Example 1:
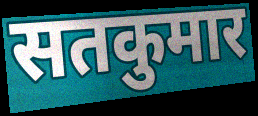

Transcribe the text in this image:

सतकुमार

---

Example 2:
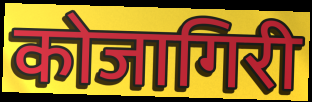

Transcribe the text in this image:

कोजागिरी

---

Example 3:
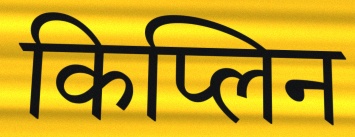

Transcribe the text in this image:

किप्लिन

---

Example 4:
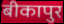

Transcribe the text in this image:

बीकापुर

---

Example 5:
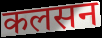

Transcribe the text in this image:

कलसन